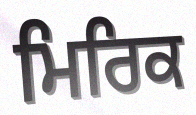
ਮਿਰਿਕ